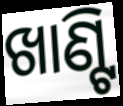
ଖାଣ୍ଟି